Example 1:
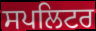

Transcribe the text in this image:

ਸਪਲਿਟਰ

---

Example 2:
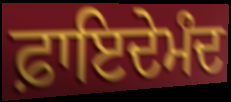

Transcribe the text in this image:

ਫ਼ਾਇਦੇਮੰਦ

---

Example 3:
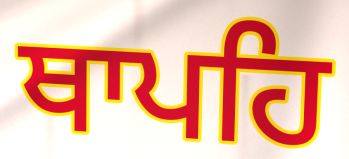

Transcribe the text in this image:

ਥਾਪਹਿ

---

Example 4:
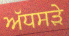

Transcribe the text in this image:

ਅੱਧਸੜੇ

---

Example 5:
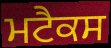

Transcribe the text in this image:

ਮਟੈਕਸ